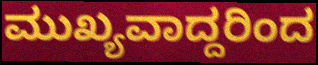
ಮುಖ್ಯವಾದ್ದರಿಂದ